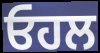
ਓਹਲ